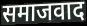
समाजवाद